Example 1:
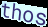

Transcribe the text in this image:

thos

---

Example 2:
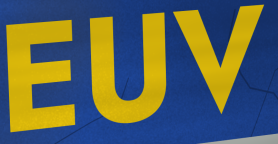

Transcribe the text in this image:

EUV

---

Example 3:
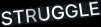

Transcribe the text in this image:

STRUGGLE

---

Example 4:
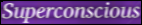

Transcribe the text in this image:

Superconscious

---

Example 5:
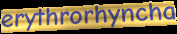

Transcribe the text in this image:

erythrorhyncha